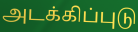
அடக்கிப்புடு